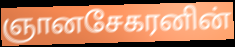
ஞானசேகரனின்